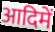
आदिमें